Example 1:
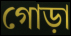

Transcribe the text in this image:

গোড়া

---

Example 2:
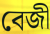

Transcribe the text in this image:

বেজী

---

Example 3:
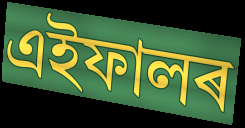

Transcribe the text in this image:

এইফালৰ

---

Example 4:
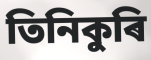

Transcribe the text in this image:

তিনিকুৰি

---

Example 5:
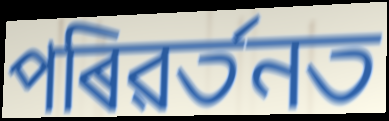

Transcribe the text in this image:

পৰিৱৰ্তনত